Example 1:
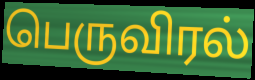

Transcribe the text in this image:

பெருவிரல்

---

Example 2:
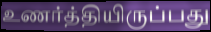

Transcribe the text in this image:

உணர்த்தியிருப்பது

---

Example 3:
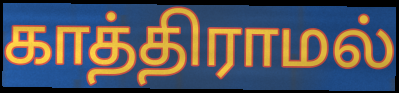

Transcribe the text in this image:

காத்திராமல்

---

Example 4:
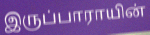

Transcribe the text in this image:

இருப்பாராயின்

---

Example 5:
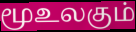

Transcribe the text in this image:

மூஉலகும்